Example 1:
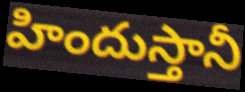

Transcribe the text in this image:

హిందుస్తానీ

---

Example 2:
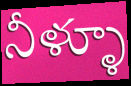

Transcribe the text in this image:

నీళ్ళూ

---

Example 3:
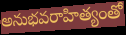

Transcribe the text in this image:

అనుభవరాహిత్యంతో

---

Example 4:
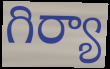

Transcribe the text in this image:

గిర్యా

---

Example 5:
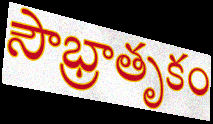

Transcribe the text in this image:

సౌభ్రాతృకం